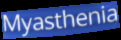
Myasthenia